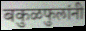
बकुळफुलांनी